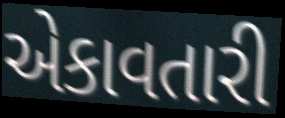
એકાવતારી